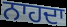
ਨਾਹਦਾ